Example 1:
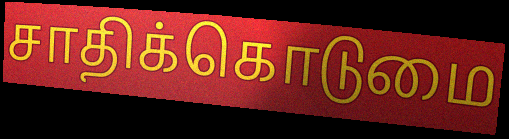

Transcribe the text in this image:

சாதிக்கொடுமை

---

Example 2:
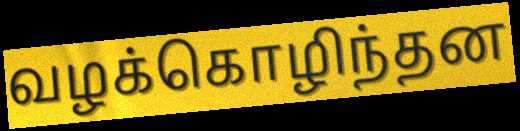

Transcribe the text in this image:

வழக்கொழிந்தன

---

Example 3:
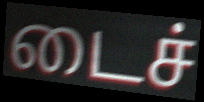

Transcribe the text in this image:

டைச்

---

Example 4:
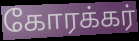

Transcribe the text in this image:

கோரக்கர்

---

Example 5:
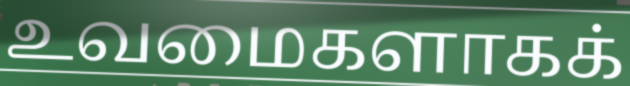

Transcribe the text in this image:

உவமைகளாகக்